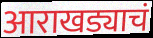
आराखड्याचं